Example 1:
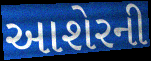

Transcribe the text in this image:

આશેરની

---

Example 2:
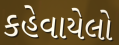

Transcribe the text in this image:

કહેવાયેલો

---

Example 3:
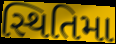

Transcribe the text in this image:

સ્થિતિમા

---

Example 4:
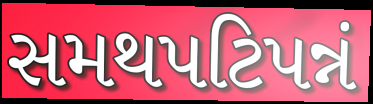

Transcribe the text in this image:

સમથપટિપન્નં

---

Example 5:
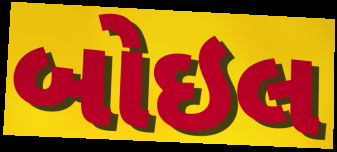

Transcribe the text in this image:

બોઇલ